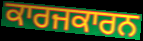
ਕਾਰਜਕਾਰਨ